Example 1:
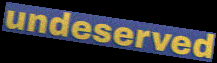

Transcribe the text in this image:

undeserved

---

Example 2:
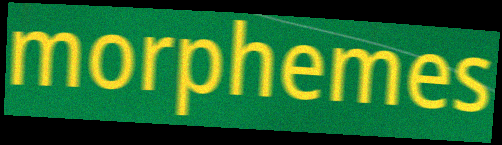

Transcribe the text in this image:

morphemes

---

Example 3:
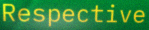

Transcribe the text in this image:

Respective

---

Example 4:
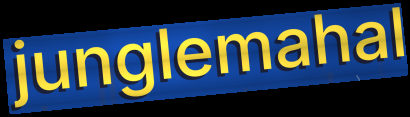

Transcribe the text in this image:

junglemahal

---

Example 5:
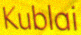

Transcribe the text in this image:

Kublai